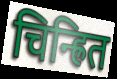
चिन्ह्रित